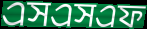
এসএসএফ